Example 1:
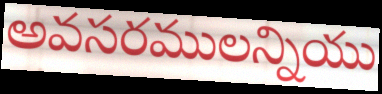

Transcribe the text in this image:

అవసరములన్నియు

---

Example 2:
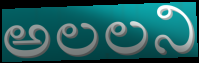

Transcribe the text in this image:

అలలని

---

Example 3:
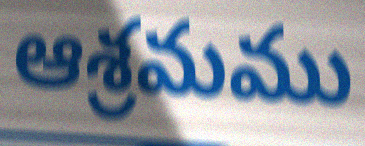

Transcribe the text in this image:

ఆశ్రమము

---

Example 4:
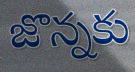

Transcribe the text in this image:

జొన్నకు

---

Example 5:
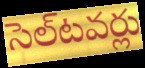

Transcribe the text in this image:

సెల్‌టవర్లు